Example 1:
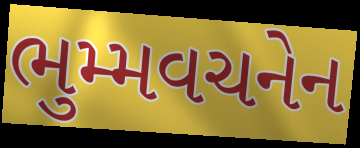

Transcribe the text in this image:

ભુમ્મવચનેન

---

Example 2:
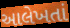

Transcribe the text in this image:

આલેખતાં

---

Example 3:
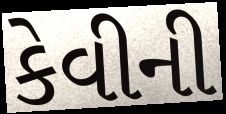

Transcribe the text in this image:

કેવીની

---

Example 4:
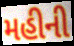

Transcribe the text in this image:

મહીની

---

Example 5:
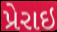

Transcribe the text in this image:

પ્રેરાઇ